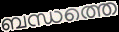
ബന്ധത്തെ